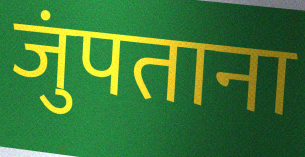
जुंपताना